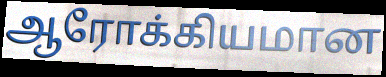
ஆரோக்கியமான